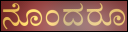
ನೊಂದರೂ